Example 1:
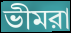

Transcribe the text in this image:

ভীমরা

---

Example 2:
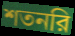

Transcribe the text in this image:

শতনরি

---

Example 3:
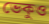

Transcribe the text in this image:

ভেকুও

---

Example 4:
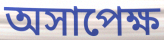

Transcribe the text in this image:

অসাপেক্ষ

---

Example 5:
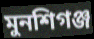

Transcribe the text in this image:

মুনশিগঞ্জ